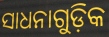
ସାଧନାଗୁଡ଼ିକ